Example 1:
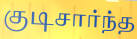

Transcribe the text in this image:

குடிசார்ந்த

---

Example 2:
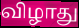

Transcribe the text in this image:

விழாது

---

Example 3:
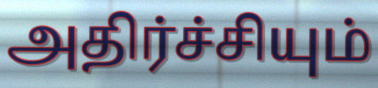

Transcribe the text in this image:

அதிர்ச்சியும்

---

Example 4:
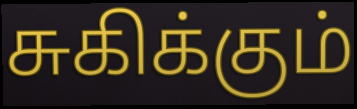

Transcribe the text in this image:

சுகிக்கும்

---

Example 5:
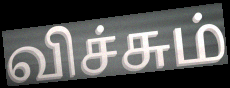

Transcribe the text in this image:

விச்சும்